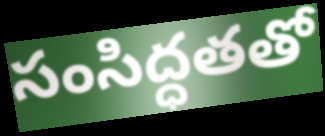
సంసిద్ధతతో